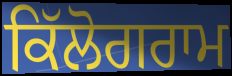
ਕਿੱਲੋਗਰਾਮ